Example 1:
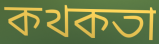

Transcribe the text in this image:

কথকতা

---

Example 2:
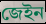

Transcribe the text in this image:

জেইন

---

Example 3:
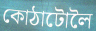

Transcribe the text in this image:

কোঠাটোলৈ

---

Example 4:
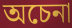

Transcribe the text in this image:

অচেনা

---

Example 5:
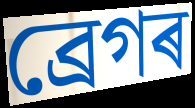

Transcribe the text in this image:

ব্ৰেগৰ